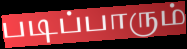
படிப்பாரும்